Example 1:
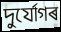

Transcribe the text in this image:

দুৰ্যোগৰ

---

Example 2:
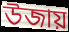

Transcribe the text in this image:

উজায়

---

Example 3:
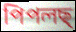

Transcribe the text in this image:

পিপলছ্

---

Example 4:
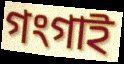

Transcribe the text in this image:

গংগাই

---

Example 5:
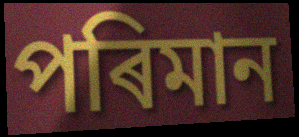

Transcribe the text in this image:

পৰিমান